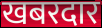
खबरदार